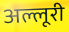
अल्लूरी